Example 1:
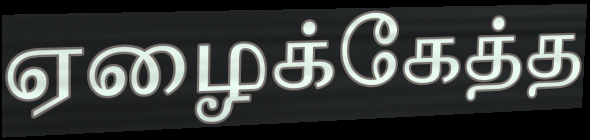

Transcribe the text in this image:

ஏழைக்கேத்த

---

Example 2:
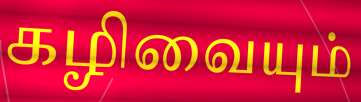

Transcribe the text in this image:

கழிவையும்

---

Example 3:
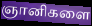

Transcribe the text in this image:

ஞானிகளை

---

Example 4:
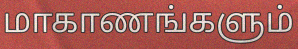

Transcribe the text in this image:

மாகாணங்களும்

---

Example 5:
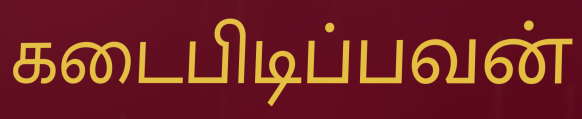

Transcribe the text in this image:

கடைபிடிப்பவன்